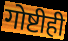
गोष्टीही